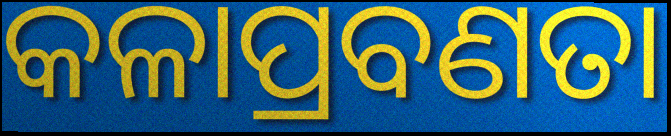
କଳାପ୍ରବଣତା